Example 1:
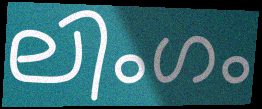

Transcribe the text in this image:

ലിംഗം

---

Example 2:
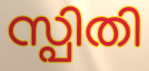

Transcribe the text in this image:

സ്പിതി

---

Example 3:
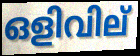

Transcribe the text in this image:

ഒളിവില്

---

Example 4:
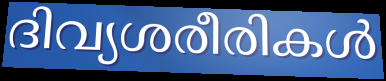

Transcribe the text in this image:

ദിവ്യശരീരികൾ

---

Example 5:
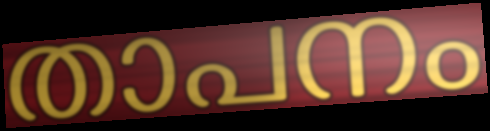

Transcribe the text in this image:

താപനം